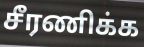
சீரணிக்க